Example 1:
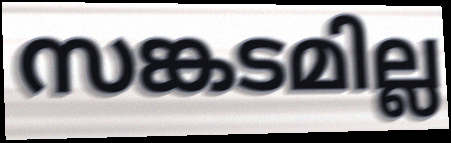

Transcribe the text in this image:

സങ്കടമില്ല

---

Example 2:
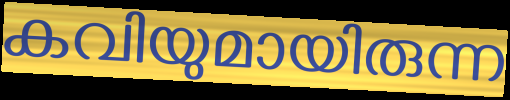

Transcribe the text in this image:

കവിയുമായിരുന്ന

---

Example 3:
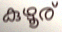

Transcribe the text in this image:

കുഴൂര്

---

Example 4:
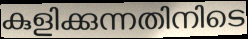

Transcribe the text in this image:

കുളിക്കുന്നതിനിടെ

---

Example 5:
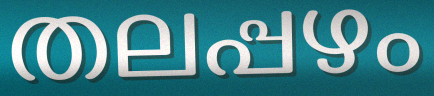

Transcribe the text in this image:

തലപ്പഴം